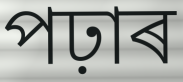
পঢ়াৰ